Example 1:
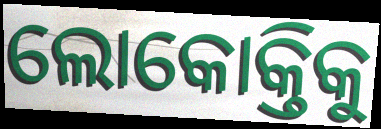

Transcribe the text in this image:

ଲୋକୋକ୍ତିକୁ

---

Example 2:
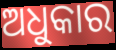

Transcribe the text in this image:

ଅଧୁକାର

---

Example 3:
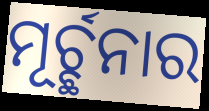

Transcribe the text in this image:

ମୂର୍ଚ୍ଛନାର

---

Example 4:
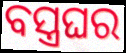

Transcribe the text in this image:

ବସ୍ତ୍ରଘର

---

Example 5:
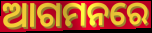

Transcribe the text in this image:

ଆଗମନରେ